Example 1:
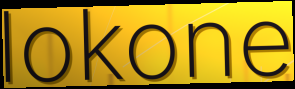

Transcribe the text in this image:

lokone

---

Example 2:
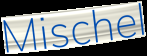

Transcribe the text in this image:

Mischel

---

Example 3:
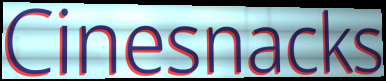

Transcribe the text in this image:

Cinesnacks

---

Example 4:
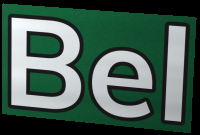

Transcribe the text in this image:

Bel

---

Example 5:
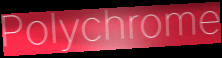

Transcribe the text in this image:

Polychrome